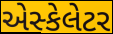
એસ્કેલેટર